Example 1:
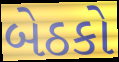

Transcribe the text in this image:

બેઠકો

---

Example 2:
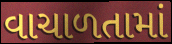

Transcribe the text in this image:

વાચાળતામાં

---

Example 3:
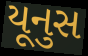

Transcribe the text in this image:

યૂનુસ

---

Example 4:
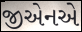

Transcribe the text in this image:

જીએનએ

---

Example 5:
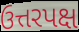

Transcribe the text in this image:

ઉત્તરપક્ષ